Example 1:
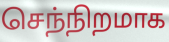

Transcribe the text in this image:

செந்நிறமாக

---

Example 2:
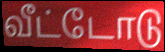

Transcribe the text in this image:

வீட்டோடு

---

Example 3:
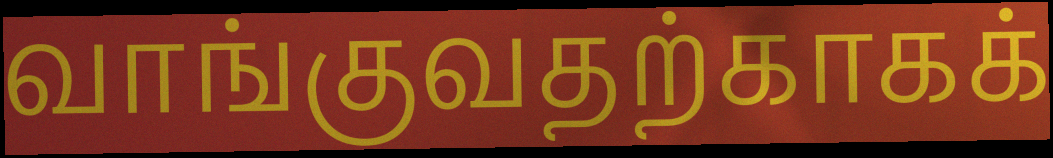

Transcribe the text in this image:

வாங்குவதற்காகக்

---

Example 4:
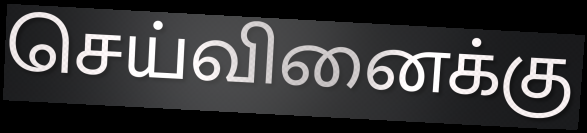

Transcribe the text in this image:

செய்வினைக்கு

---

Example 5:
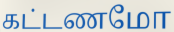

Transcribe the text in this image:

கட்டணமோ